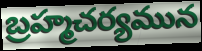
బ్రహ్మచర్యమున